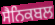
ਸੈਨਿਕਬਲ